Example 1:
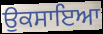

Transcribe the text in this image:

ਉਕਸਾਇਆ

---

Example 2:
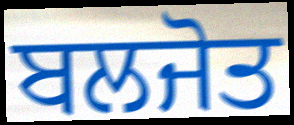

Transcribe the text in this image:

ਬਲਜੋਤ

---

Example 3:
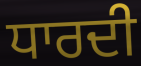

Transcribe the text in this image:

ਧਾਰਦੀ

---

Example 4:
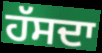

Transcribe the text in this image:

ਹੱਸਦਾ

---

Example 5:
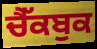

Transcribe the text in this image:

ਚੈੱਕਬੁਕ